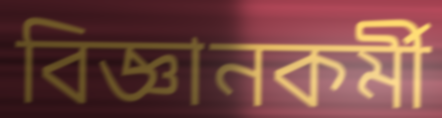
বিজ্ঞানকর্মী